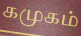
கமுகம்